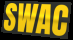
SWAC